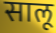
सालू